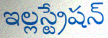
ఇల్లస్ట్రేషన్